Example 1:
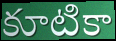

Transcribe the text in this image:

కూటికా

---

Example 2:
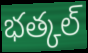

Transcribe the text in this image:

భత్కల్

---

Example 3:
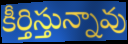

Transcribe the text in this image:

కీర్తిస్తున్నావు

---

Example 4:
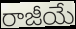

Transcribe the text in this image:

రాజీయే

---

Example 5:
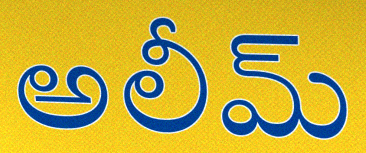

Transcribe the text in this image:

అలీమ్